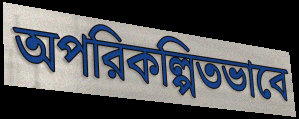
অপরিকল্পিতভাবে